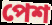
পেশ